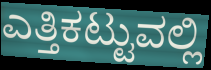
ಎತ್ತಿಕಟ್ಟುವಲ್ಲಿ